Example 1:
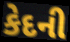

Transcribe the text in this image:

કેદની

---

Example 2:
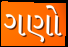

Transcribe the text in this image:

ગણો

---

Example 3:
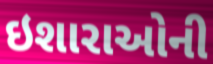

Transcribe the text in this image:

ઇશારાઓની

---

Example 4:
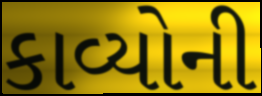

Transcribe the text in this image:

કાવ્યોની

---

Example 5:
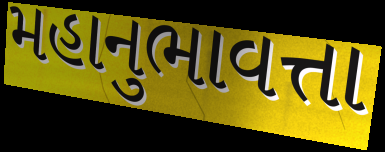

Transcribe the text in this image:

મહાનુભાવત્તા